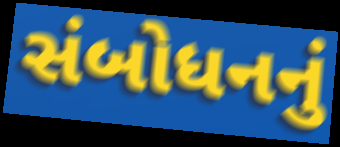
સંબોધનનું